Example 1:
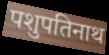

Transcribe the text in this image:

पशुपतिनाथ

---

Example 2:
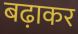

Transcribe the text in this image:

बढ़ाकर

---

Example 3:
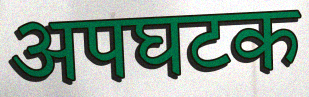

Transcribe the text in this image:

अपघटक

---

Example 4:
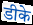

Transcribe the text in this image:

डीके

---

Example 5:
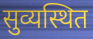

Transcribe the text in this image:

सुव्यस्थित